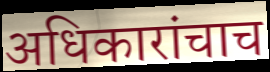
अधिकारांचाच